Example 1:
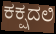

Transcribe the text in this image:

ಕಕ್ಷದಲಿ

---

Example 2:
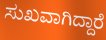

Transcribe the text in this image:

ಸುಖವಾಗಿದ್ದಾರೆ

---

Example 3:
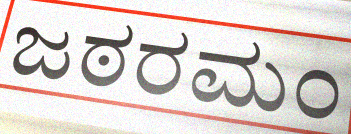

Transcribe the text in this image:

ಜಠರಮಂ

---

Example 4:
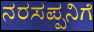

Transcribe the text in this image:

ನರಸಪ್ಪನಿಗೆ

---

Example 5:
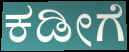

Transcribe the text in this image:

ಕಡೀಗೆ